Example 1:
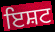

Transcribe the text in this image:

ਇਸ਼ਟ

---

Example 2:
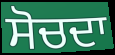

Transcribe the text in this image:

ਸੋਚਦਾ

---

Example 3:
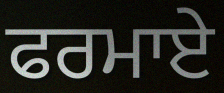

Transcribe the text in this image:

ਫਰਮਾਏ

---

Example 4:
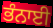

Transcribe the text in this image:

ਭੰਨਾਈ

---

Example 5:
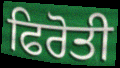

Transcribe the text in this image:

ਫਿਰੋਤੀ